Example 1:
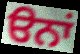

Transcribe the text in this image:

ੳਨਾਂ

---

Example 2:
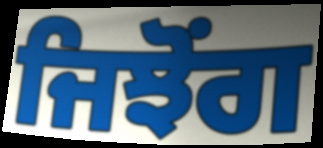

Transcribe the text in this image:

ਜਿਝੋਂਗ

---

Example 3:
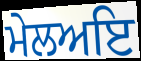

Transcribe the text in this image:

ਮੇਲਅਇ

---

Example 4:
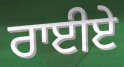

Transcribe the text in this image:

ਰਾਈਏ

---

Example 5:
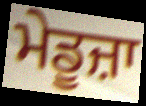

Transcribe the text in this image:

ਮੇਡੂਜ਼ਾ